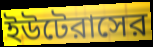
ইউটেরাসের